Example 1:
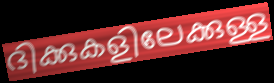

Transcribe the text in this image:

ദിക്കുകളിലേക്കുള്ള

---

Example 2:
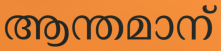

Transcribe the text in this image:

ആന്തമാന്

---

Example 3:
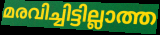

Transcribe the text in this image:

മരവിച്ചിട്ടില്ലാത്ത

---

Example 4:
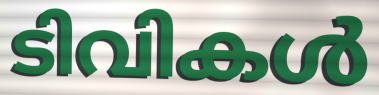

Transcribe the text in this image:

ടിവികൾ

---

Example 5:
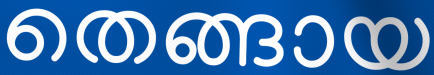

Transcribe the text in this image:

തെങ്ങായ